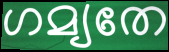
ഗമ്യതേ